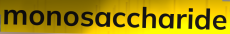
monosaccharide